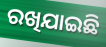
ରଖିଯାଇଛି